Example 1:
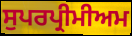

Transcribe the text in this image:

ਸੁਪਰਪ੍ਰੀਮੀਅਮ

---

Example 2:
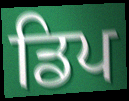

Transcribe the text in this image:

ਡਿਪ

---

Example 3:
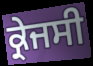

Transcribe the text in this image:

ਕ੍ਰੇਜਸੀ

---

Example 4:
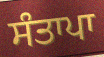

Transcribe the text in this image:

ਸੰਤਾਪਾ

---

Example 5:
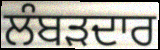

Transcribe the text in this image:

ਲੰਬੜਦਾਰ